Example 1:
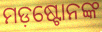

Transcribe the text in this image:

ମଡ଼ଷ୍ଟୋନଙ୍କ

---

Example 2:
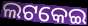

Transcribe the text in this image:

ଲଟକେଇ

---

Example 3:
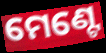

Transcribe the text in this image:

ମେଣ୍ଟେ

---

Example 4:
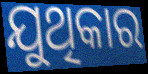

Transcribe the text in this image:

ଯୁଥିକାର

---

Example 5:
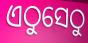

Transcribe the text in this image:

ଏଠୁସେଠୁ